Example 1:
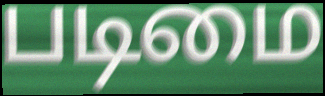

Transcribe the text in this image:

படிமை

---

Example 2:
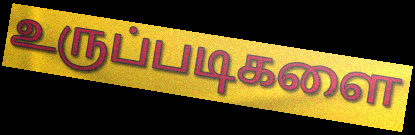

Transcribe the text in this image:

உருப்படிகளை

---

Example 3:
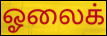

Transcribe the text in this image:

ஓலைக்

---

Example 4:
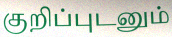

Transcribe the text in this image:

குறிப்புடனும்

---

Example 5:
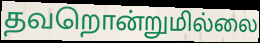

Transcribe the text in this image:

தவறொன்றுமில்லை